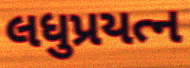
લધુપ્રયત્ન